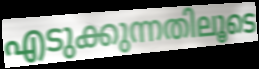
എടുക്കുന്നതിലൂടെ